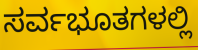
ಸರ್ವಭೂತಗಳಲ್ಲಿ